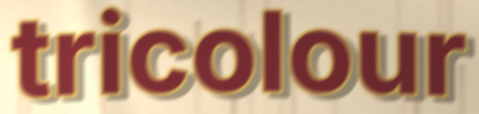
tricolour